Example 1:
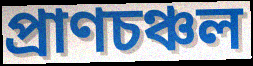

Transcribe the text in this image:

প্ৰাণচঞ্চল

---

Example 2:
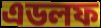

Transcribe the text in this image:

এডলফ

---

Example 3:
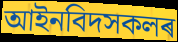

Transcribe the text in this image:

আইনবিদসকলৰ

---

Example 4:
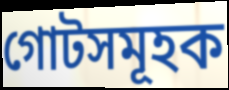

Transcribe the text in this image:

গোটসমূহক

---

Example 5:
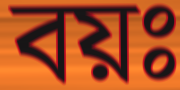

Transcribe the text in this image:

বয়ঃ